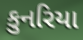
કુનરિયા